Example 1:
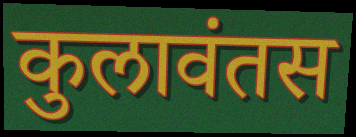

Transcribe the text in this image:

कुलावंतस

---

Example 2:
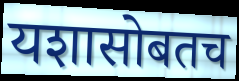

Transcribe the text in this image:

यशासोबतच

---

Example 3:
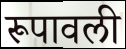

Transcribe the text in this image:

रूपावली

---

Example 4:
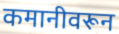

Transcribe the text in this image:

कमानीवरून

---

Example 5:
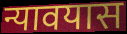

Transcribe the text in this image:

न्यावयास